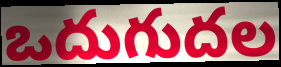
ఒదుగుదల